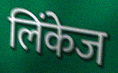
लिंकेज